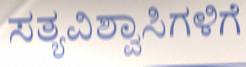
ಸತ್ಯವಿಶ್ವಾಸಿಗಳಿಗೆ